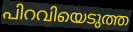
പിറവിയെടുത്ത